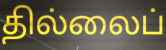
தில்லைப்